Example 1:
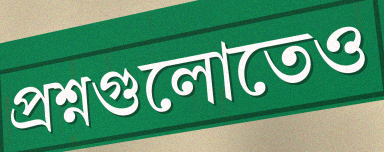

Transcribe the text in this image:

প্রশ্নগুলোতেও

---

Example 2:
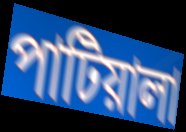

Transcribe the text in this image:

পাটিয়ালা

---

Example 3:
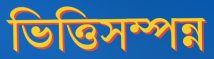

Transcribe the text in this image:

ভিত্তিসম্পন্ন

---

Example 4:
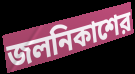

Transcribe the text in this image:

জলনিকাশের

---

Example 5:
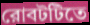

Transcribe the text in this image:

রোবটটিতে